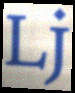
Lj